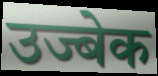
उज्बेक